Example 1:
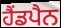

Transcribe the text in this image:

ਹੈਂਡਪੈਨ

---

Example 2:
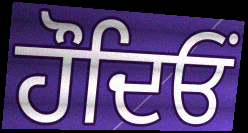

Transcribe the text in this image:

ਹੌਦਿਓਂ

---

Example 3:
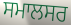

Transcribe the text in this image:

ਸਮਾਲਸਰ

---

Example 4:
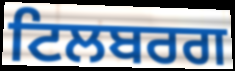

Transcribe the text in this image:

ਟਿਲਬਰਗ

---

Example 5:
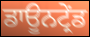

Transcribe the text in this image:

ਡਾਊਨਟ੍ਰੇਂਡ